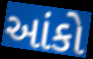
આંકો